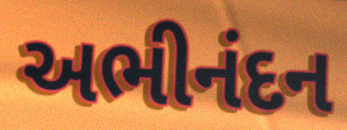
અભીનંદન